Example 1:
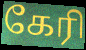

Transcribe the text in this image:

கேரி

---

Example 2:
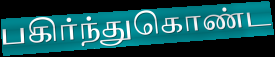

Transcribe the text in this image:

பகிர்ந்துகொண்ட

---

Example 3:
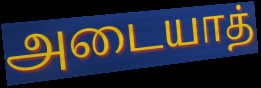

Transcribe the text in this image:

அடையாத்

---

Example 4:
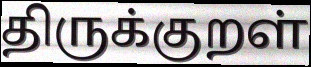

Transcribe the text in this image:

திருக்குறள்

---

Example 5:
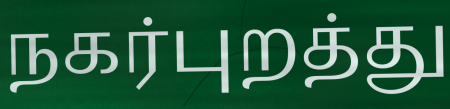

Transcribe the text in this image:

நகர்புறத்து